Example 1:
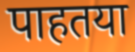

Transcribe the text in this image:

पाहतया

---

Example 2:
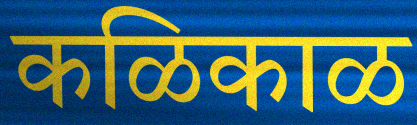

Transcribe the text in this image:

कळिकाळ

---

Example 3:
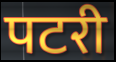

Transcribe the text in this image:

पटरी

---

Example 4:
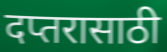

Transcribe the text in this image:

दप्तरासाठी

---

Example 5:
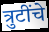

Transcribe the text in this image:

त्रुटींचे